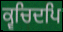
ਕ੍ਵਚਿਦਪਿ